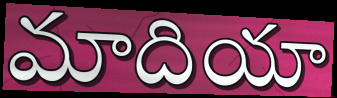
మాదియా